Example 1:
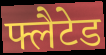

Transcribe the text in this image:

फ्लैटेड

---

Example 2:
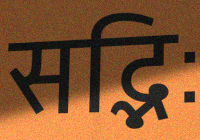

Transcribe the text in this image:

सद्भिः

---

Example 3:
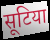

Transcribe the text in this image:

सूटिया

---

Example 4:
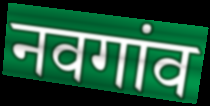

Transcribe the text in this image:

नवगांव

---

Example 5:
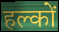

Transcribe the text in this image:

हल्कों